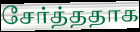
சேர்த்ததாக